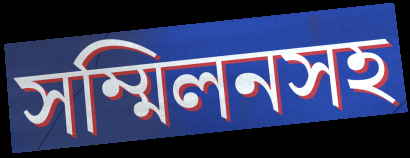
সম্মিলনসহ